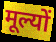
मूल्यों